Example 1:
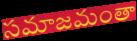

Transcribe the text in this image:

సమాజమంతా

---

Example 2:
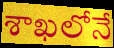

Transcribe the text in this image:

శాఖలోనే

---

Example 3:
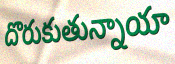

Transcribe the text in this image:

దొరుకుతున్నాయా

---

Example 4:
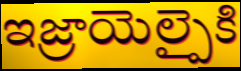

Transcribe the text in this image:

ఇజ్రాయెల్పైకి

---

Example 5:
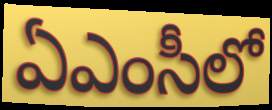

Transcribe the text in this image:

ఏఎంసీలో